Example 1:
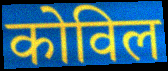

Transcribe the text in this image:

कोविल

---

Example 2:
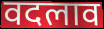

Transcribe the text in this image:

वदलाव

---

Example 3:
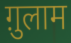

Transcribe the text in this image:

ग़ुलाम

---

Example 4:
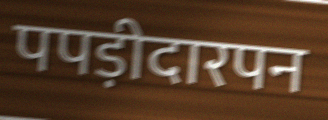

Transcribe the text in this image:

पपड़ीदारपन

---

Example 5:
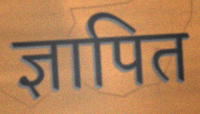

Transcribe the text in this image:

ज्ञापित